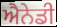
ਐਨੇਡੀ